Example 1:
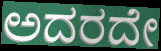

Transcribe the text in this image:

ಅದರದೇ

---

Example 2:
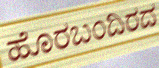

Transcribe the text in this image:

ಹೊರಬಂದಿರದ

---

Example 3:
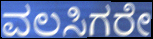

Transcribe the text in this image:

ವಲಸಿಗರೇ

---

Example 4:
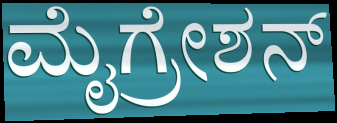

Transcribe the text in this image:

ಮೈಗ್ರೇಶನ್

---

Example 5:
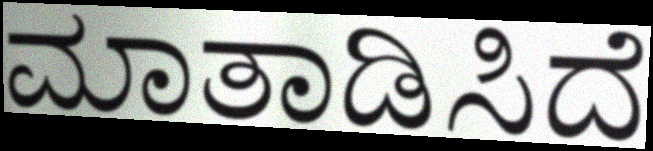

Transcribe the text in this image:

ಮಾತಾಡಿಸಿದೆ